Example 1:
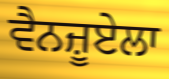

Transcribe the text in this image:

ਵੈਨਜ਼ੂਏਲਾ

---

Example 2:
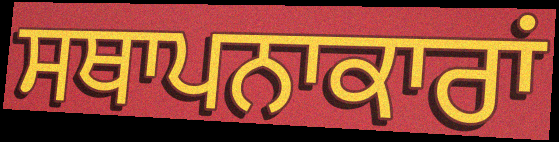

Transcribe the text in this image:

ਸਥਾਪਨਾਕਾਰਾਂ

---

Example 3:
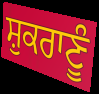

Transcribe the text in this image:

ਸ਼ੁਕਰਾਣੂੰ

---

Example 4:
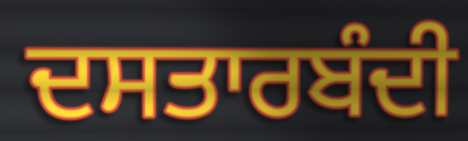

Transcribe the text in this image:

ਦਸਤਾਰਬੰਦੀ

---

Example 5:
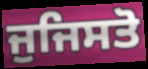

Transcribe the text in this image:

ਜੁਜਿਸਤੋ